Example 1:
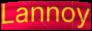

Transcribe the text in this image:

Lannoy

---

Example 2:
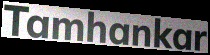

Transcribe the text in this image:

Tamhankar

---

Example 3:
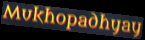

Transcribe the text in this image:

Mukhopadhyay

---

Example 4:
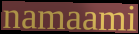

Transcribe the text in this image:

namaami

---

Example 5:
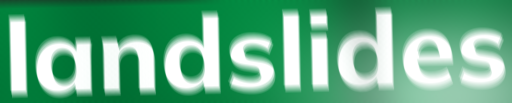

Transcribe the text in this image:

landslides